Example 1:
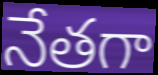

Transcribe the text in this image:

నేతగా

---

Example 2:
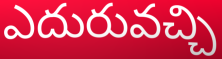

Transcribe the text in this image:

ఎదురువచ్చి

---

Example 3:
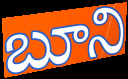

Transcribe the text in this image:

బూని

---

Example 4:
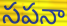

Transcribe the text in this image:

సపనా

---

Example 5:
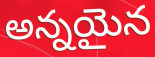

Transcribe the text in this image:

అన్నయైన